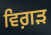
ਵਿਗ਼ੜ